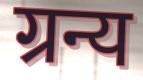
ग्रन्य